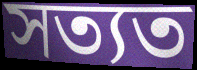
সত্যত